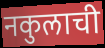
नकुलाची